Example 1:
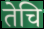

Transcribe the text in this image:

तेचि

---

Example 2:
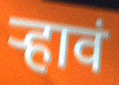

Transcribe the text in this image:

र्‍हावं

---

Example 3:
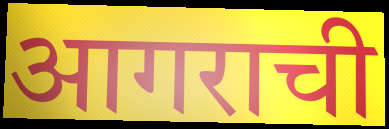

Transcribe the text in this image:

आगराची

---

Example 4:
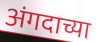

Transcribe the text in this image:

अंगदाच्या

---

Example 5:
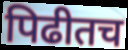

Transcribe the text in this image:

पिढीतच